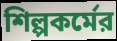
শিল্পকর্মের